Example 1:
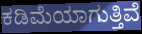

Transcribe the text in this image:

ಕಡಿಮೆಯಾಗುತ್ತಿವೆ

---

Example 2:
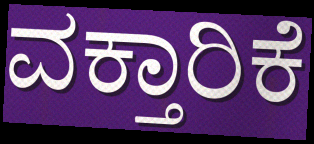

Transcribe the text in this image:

ವಕ್ತಾರಿಕೆ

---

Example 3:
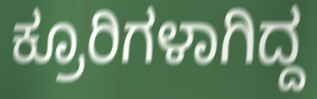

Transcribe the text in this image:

ಕ್ರೂರಿಗಳಾಗಿದ್ದ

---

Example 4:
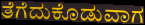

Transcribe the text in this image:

ತೆಗೆದುಕೊಡುವಾಗ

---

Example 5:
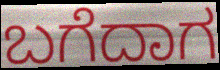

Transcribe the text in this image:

ಬಗೆದಾಗ